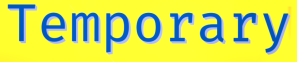
Temporary